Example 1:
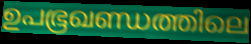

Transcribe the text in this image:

ഉപഭൂഖണ്ഡത്തിലെ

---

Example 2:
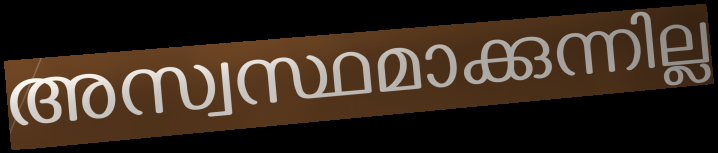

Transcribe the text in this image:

അസ്വസ്ഥമാക്കുന്നില്ല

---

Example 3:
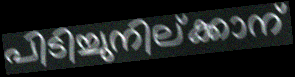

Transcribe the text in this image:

പിടിച്ചുനില്ക്കാന്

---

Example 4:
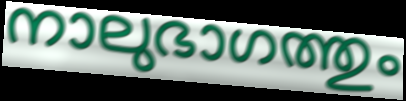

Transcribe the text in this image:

നാലുഭാഗത്തും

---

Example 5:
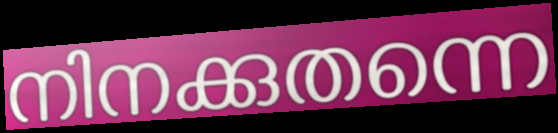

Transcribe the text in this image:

നിനക്കുതന്നെ